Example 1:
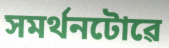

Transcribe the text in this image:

সমৰ্থনটোৱে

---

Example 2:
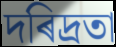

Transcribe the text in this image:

দৰিদ্ৰতা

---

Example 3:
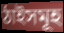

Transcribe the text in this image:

ঠাইসমূহ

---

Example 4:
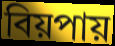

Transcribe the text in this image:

বিয়পায়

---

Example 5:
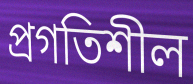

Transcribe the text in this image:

প্ৰগতিশীল